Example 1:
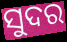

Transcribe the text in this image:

ସୁଦର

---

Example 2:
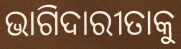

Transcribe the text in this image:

ଭାଗିଦାରୀତାକୁ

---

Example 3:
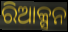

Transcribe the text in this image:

ରିଆକ୍ସନ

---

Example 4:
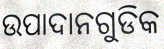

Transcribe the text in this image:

ଉପାଦାନଗୁଡିକ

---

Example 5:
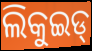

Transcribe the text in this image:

ଲିକୁଇଡ୍